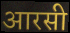
आरसी